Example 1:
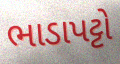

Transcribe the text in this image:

ભાડાપટ્ટો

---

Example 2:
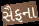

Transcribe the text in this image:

સૈફના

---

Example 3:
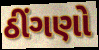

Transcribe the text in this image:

ઠીંગણો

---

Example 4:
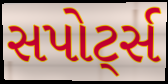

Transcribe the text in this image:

સપોર્ટ્સ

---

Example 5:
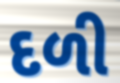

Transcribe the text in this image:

દળી